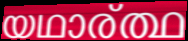
യഥാര്ത്ഥ